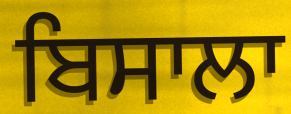
ਬਿਸਾਲਾ